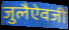
जुलैऐवजी